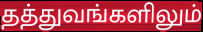
தத்துவங்களிலும்